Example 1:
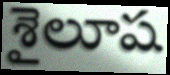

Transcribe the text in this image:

శైలూష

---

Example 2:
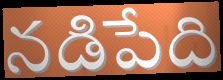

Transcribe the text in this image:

నడిపేది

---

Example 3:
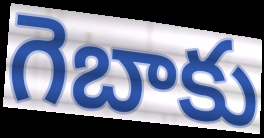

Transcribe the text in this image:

గెబాకు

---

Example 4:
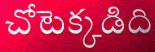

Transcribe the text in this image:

చోటెక్కడిది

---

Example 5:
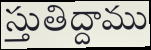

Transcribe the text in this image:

స్తుతిద్దాము